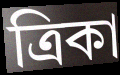
ত্রিকা